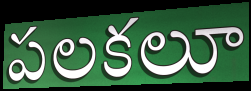
పలకలూ